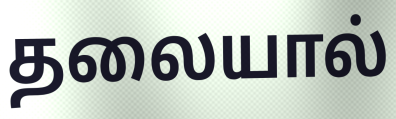
தலையால்